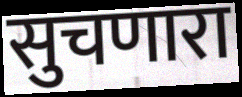
सुचणारा